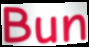
Bun